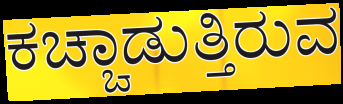
ಕಚ್ಚಾಡುತ್ತಿರುವ